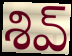
శివ్